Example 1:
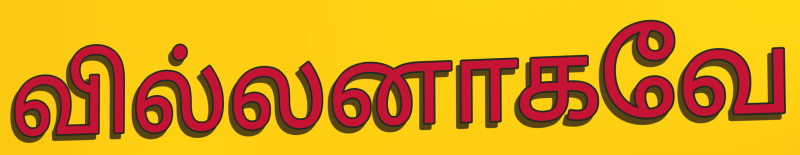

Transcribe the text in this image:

வில்லனாகவே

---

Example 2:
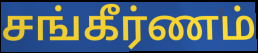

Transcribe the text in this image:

சங்கீர்ணம்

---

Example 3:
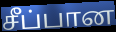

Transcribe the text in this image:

சீப்பான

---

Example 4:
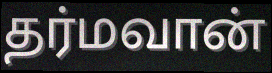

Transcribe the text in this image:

தர்மவான்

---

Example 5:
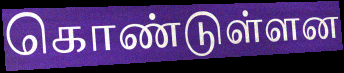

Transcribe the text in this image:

கொண்டுள்ளன